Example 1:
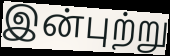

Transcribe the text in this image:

இன்புற்று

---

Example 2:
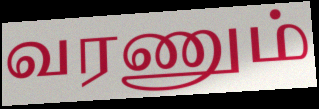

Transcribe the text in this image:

வரணும்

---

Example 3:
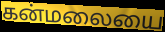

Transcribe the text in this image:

கன்மலையை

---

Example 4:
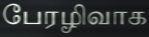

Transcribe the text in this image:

பேரழிவாக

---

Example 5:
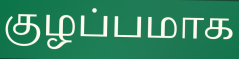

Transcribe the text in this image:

குழப்பமாக